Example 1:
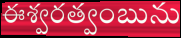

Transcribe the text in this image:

ఈశ్వరత్వంబును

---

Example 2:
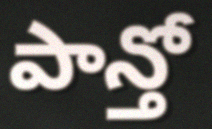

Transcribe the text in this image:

పాన్తో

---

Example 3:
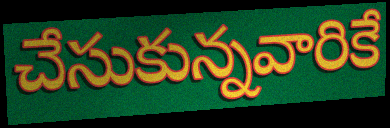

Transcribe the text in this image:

చేసుకున్నవారికే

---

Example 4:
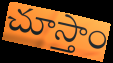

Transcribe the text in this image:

చూస్తాం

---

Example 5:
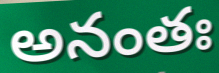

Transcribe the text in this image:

అనంతః